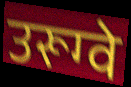
उरूग्वे